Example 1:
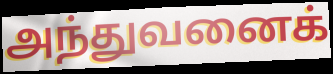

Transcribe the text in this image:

அந்துவனைக்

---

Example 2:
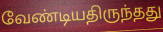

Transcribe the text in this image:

வேண்டியதிருந்தது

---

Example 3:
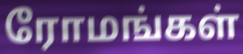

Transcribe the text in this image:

ரோமங்கள்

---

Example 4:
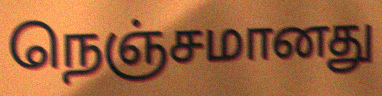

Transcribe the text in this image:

நெஞ்சமானது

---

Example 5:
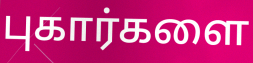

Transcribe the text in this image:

புகார்களை